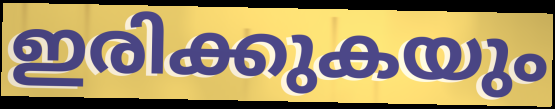
ഇരിക്കുകയും